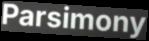
Parsimony